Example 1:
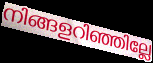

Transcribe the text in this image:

നിങ്ങളറിഞ്ഞില്ലേ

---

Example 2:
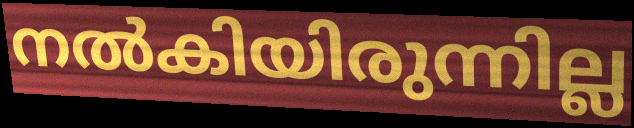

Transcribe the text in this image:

നൽകിയിരുന്നില്ല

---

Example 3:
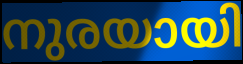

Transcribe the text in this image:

നുരയായി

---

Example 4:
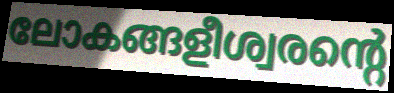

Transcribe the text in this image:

ലോകങ്ങളീശ്വരന്റെ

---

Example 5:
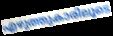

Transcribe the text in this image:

എഴുത്തുകാരിലൂടെ